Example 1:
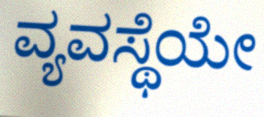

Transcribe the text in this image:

ವ್ಯವಸ್ಥೆಯೇ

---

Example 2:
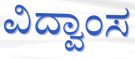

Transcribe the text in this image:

ವಿದ್ವಾಂಸ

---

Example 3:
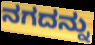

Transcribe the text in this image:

ನಗದನ್ನು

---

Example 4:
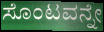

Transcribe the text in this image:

ಸೊಂಟವನ್ನೇ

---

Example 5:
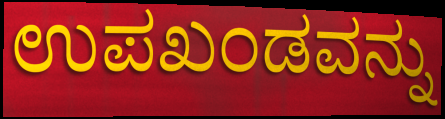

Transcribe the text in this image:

ಉಪಖಂಡವನ್ನು